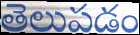
తెలుపడం